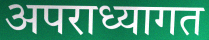
अपराध्यागत